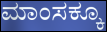
ಮಾಂಸಕ್ಕೂ